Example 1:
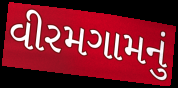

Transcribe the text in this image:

વીરમગામનું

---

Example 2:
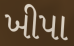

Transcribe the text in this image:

ખીપા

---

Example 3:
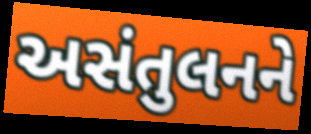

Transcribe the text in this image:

અસંતુલનને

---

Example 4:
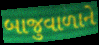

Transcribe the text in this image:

બાજુવાળાને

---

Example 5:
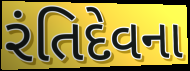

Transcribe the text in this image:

રંતિદેવના